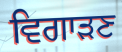
ਵਿਗਾੜਣ